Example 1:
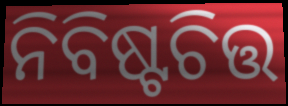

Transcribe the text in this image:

ନିବିଷ୍ଟଚିତ୍ତ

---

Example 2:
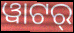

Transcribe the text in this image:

ୱାଟର୍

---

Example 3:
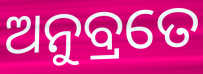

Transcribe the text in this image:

ଅନୁବ୍ରତେ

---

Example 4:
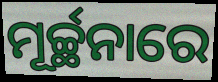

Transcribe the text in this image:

ମୂର୍ଚ୍ଛନାରେ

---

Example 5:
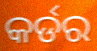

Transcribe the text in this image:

କର୍ଡର